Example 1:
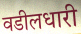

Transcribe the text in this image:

वडीलधारी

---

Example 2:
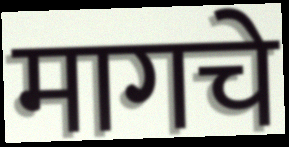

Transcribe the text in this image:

मागचे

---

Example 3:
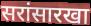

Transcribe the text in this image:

सरांसारखा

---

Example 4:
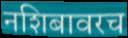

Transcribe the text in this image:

नशिबावरच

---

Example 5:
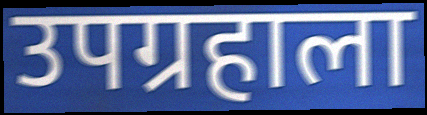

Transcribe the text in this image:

उपग्रहाला